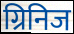
ग्रिनिज